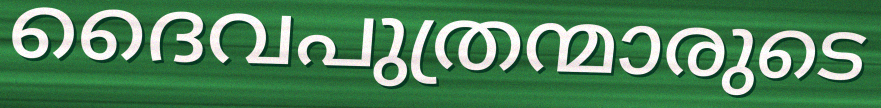
ദൈവപുത്രന്മാരുടെ